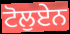
ਟੋਲੁਏਨ